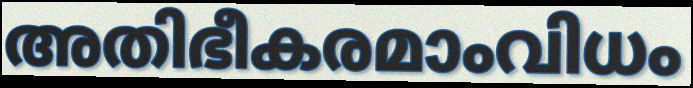
അതിഭീകരമാംവിധം